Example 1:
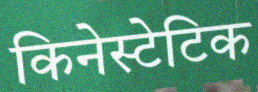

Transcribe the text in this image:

किनेस्टेटिक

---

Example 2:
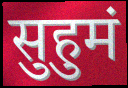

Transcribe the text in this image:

सुहुमं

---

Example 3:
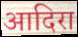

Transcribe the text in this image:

आदिरा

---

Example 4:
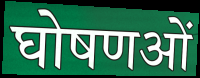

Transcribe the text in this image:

घोषणओं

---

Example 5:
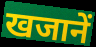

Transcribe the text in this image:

खजानें